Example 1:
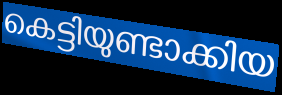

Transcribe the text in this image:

കെട്ടിയുണ്ടാക്കിയ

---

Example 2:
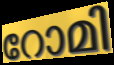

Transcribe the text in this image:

റോമി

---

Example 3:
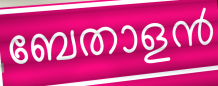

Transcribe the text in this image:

ബേതാളൻ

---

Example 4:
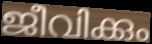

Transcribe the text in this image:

ജീവിക്കും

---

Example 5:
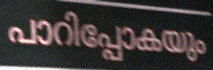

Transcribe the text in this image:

പാറിപ്പോകയും